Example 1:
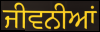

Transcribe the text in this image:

ਜੀਵਨੀਆਂ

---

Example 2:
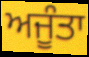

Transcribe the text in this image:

ਅਜੂੰਤਾ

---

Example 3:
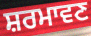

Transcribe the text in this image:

ਸ਼ਰਮਾਵਣ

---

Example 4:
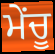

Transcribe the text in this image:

ਮੇਂਚੂ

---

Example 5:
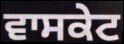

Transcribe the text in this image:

ਵਾਸਕੇਟ